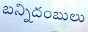
బన్నిదంబులు